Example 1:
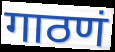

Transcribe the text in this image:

गाठणं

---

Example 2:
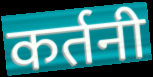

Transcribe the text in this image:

कर्तनी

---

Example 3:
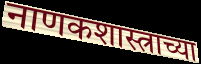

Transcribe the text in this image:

नाणकशास्त्राच्या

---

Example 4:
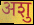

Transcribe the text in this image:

अशु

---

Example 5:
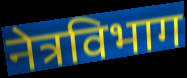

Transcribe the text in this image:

नेत्रविभाग